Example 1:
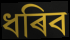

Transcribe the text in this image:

ধৰিব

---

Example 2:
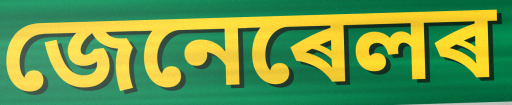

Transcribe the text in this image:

জেনেৰেলৰ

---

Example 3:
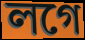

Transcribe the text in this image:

লগে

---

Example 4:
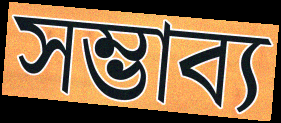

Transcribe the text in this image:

সম্ভাব্য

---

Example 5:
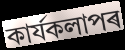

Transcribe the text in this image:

কাৰ্যকলাপৰ